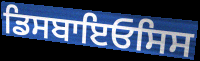
ਡਿਸਬਾਇਓਸਿਸ